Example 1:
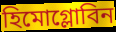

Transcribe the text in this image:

হিমোগ্লোবিন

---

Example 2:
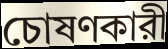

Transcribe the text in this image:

চোষণকারী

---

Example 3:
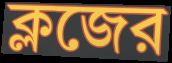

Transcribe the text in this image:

ক্লজের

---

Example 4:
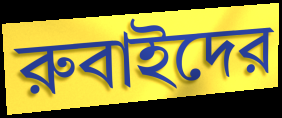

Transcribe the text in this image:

রুবাইদের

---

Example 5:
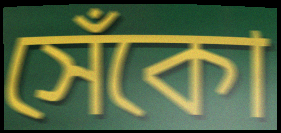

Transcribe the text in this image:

সেঁকো